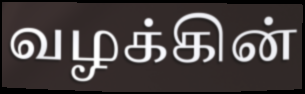
வழக்கின்